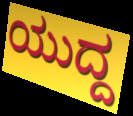
ಯುದ್ದ